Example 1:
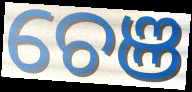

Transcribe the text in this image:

ଚେଞ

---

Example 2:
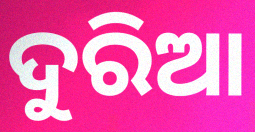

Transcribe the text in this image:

ଦୁରିଆ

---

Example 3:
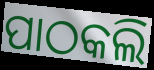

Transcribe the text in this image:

ପାଠକଲି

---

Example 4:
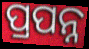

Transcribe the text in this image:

ପ୍ରପନ୍ନ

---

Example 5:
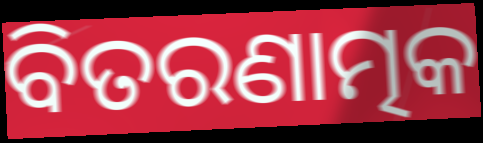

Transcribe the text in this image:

ବିତରଣାତ୍ମକ